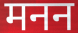
मनन